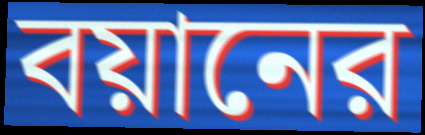
বয়ানের